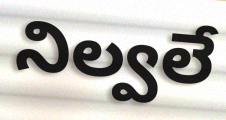
నిల్వలే